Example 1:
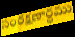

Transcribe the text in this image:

సంరక్షణార్ధము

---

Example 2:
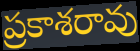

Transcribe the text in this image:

ప్రకాశరావు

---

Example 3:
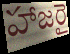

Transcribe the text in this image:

హాజరై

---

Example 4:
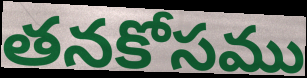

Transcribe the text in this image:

తనకోసము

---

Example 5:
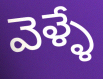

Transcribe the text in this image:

వెళ్ళే